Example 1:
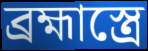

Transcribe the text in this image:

ব্রহ্মাস্ত্রে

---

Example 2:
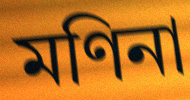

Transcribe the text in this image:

মণিনা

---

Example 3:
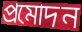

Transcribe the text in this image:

প্রমোদন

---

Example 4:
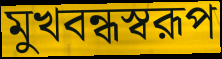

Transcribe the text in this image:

মুখবন্ধস্বরূপ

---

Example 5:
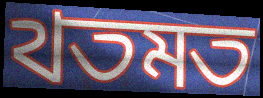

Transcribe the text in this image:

থতমত